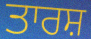
ਤਾਰਸ਼